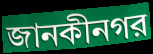
জানকীনগর